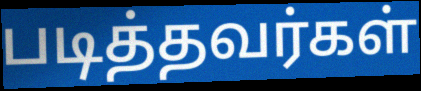
படித்தவர்கள்